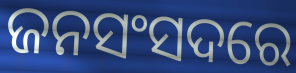
ଜନସଂସଦରେ